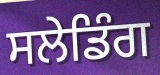
ਸਲੇਡਿੰਗ